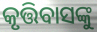
କୃତ୍ତିବାସଙ୍କୁ